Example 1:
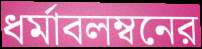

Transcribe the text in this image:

ধর্মাবলম্বনের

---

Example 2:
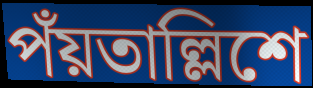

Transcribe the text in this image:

পঁয়তাল্লিশে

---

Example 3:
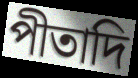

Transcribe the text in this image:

পীতাদি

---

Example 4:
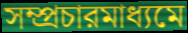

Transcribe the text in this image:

সম্প্রচারমাধ্যমে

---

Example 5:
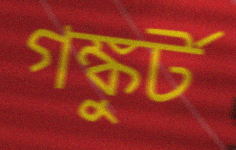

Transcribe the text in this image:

গঙ্কুর্ট